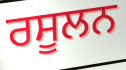
ਰਸੂਲਨ